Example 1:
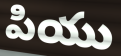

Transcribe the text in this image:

పియు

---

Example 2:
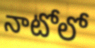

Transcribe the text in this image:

నాటోలో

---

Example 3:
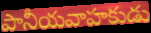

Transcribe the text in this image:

పానీయవాహకుడు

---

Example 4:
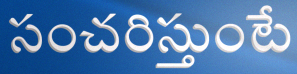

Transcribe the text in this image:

సంచరిస్తుంటే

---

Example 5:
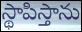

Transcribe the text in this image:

స్థాపిస్తాను